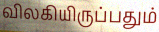
விலகியிருப்பதும்